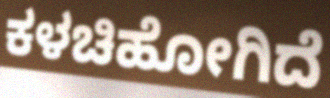
ಕಳಚಿಹೋಗಿದೆ